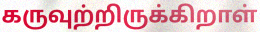
கருவுற்றிருக்கிறாள்